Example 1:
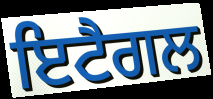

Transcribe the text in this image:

ਇਟੈਗਲ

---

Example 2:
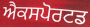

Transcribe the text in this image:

ਐਕਸਪੋਰਟਡ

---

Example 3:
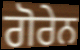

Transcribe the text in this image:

ਗੋਰੇਨ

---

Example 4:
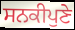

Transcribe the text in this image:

ਸਨਕੀਪੁਣੇ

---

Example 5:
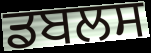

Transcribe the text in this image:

ਡਬਲਸ